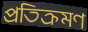
প্রতিক্রমণ